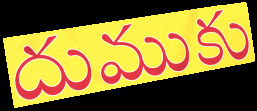
దుముకు